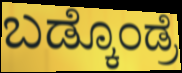
ಬಡ್ಕೊಂಡ್ರೆ